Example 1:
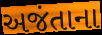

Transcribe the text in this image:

અજંતાના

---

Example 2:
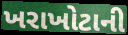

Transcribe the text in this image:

ખરાખોટાની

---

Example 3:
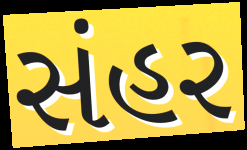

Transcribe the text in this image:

સંહર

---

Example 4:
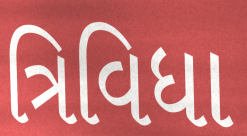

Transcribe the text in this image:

ત્રિવિધા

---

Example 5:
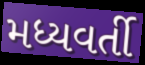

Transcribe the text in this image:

મધ્યવર્તી